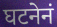
घटनेनं